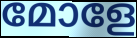
മോളേ